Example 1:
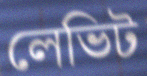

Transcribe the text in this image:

লেভিট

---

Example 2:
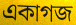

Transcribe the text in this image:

একাগজ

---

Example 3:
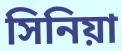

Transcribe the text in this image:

সিনিয়া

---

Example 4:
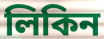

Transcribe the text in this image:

লিকিন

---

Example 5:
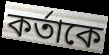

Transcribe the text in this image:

কর্তাকে